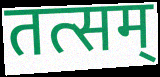
तत्सम्